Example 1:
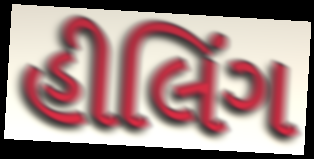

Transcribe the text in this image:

હીલિંગ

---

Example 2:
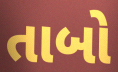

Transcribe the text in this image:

તાબો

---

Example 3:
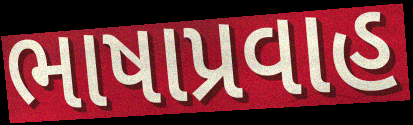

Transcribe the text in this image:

ભાષાપ્રવાહ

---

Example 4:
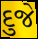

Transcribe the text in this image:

દુજે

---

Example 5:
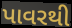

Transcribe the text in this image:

પાવરથી